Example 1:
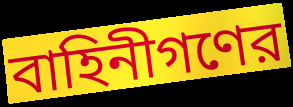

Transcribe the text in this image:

বাহিনীগণের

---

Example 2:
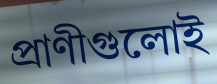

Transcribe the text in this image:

প্রাণীগুলোই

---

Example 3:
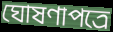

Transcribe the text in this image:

ঘোষণাপত্রে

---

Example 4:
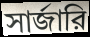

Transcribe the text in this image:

সার্জারি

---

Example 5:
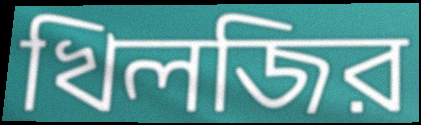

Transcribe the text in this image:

খিলজির